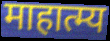
माहात्म्य